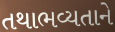
તથાભવ્યતાને